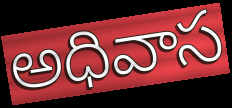
అధివాస